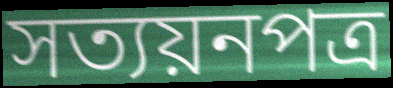
সত্যয়নপত্র